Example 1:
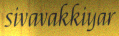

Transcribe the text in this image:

sivavakkiyar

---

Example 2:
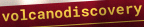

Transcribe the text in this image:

volcanodiscovery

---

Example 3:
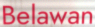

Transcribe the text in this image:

Belawan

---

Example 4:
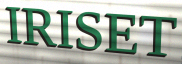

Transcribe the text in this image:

IRISET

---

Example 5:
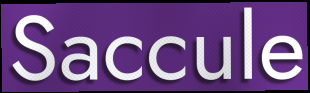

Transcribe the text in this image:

Saccule